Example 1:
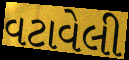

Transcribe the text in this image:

વટાવેલી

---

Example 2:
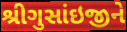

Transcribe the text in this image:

શ્રીગુસાંઇજીને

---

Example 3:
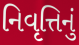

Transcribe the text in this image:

નિવૃત્તિનું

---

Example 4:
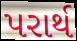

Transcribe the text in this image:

પરાર્થ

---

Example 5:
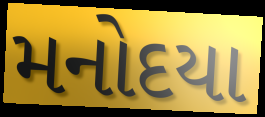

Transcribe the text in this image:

મનોદયા